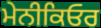
ਮੇਨੀਕਿਓਰ